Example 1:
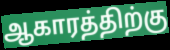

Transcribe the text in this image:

ஆகாரத்திற்கு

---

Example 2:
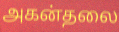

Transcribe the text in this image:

அகன்தலை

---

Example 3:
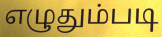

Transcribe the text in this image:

எழுதும்படி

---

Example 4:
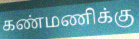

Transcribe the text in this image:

கண்மணிக்கு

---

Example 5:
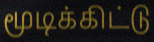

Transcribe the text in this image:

மூடிக்கிட்டு